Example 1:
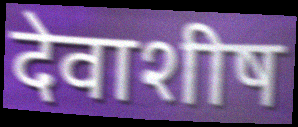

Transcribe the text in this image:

देवाशीष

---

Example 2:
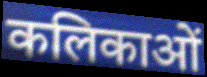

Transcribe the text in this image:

कलिकाओं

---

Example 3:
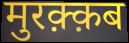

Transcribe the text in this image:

मुरक़्क़ब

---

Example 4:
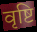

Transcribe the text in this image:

वृष्टि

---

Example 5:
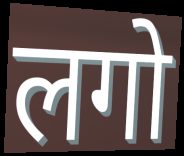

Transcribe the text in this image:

लगो